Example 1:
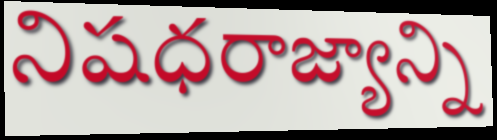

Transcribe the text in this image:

నిషధరాజ్యాన్ని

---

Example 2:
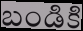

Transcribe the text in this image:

బండికి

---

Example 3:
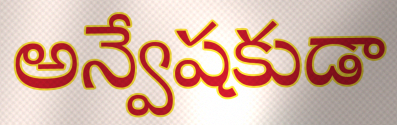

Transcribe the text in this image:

అన్వేషకుడా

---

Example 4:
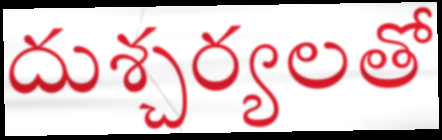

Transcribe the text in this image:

దుశ్చర్యలతో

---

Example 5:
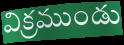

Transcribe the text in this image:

విక్రముండు